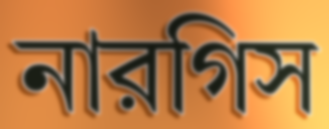
নারগিস